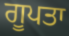
ਗੂਪਤਾ